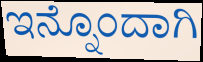
ಇನ್ನೊಂದಾಗಿ